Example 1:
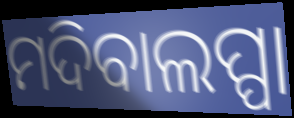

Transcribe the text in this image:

ମଦିବାଲପ୍ପା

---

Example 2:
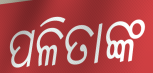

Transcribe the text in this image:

ପଳିତାଙ୍କ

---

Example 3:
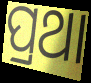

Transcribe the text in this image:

ପ୍ରଥା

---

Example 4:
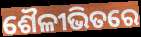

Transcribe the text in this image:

ଶୈଳୀଭିତରେ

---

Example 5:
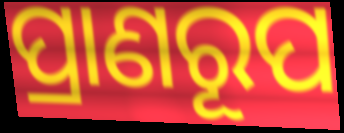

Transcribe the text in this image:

ପ୍ରାଣରୂପ